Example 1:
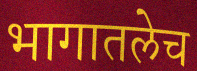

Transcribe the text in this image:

भागातलेच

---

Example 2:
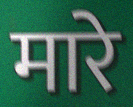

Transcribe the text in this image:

मारे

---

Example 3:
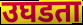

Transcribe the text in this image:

उघडता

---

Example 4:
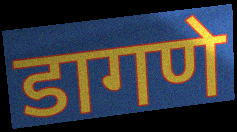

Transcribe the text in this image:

डागणे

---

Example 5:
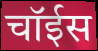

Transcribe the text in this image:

चॉईस